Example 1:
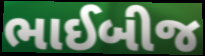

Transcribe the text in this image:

ભાઈબીજ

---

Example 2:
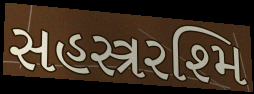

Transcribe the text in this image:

સહસ્ત્રરશ્મિ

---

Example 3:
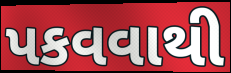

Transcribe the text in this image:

પકવવાથી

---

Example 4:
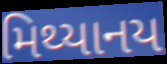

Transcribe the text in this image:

મિથ્યાનય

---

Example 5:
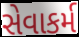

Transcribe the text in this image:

સેવાકર્મ